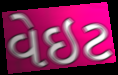
વેઇટ